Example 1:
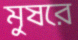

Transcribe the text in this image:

মুষরে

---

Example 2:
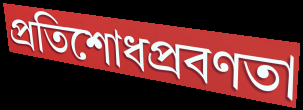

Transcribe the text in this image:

প্রতিশোধপ্রবণতা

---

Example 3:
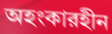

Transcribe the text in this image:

অহংকারহীন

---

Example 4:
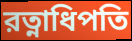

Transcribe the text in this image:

রত্নাধিপতি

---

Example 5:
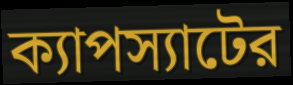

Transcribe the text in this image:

ক্যাপস্যাটের